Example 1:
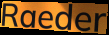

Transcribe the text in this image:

Raeder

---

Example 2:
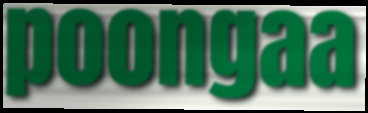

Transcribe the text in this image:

poongaa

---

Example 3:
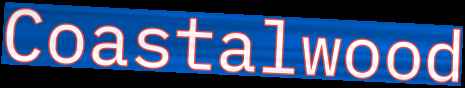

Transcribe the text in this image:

Coastalwood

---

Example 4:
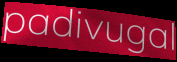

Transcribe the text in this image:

padivugal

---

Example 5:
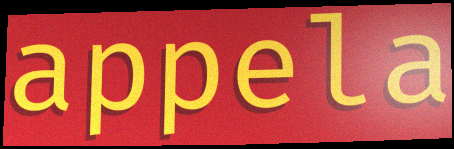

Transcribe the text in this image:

appela